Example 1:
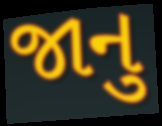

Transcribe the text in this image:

જાનુ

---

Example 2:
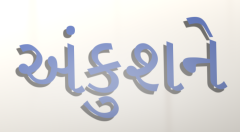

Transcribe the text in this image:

અંકુશને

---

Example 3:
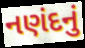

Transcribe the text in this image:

નણંદનું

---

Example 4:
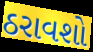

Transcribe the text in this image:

ઠરાવશો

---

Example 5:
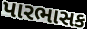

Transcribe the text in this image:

પારભાસક